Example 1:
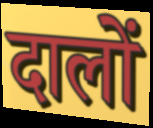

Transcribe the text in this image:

दालों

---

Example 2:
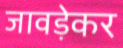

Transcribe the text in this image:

जावड़ेकर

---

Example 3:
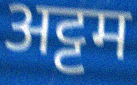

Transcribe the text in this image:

अट्टम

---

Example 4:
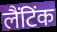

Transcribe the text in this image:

लैंटिंक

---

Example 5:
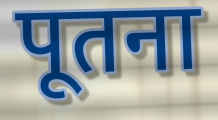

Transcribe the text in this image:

पूतना